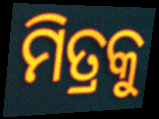
ମିତ୍ରକୁ